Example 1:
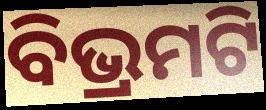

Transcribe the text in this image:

ବିଭ୍ରମଟି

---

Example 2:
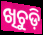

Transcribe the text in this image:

ଖିଚୁଡ଼ି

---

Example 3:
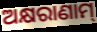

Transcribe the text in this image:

ଅକ୍ଷରାଣାମ୍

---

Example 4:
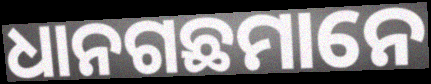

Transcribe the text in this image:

ଧାନଗଛମାନେ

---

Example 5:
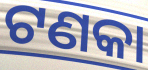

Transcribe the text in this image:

ଟଣକା